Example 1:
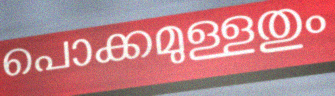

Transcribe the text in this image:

പൊക്കമുള്ളതും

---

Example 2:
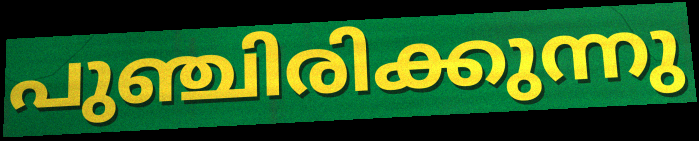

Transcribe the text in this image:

പുഞ്ചിരിക്കുന്നു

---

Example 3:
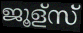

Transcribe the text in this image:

ജൂള്സ്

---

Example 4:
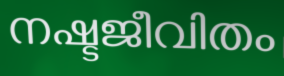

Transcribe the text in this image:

നഷ്ടജീവിതം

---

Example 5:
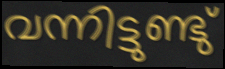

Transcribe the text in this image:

വന്നിട്ടുണ്ടു്